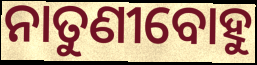
ନାତୁଣୀବୋହୁ